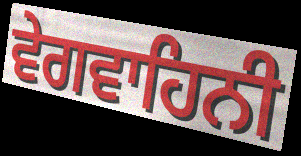
ਵੇਗਵਾਹਿਨੀ